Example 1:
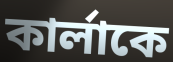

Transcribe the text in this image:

কার্লাকে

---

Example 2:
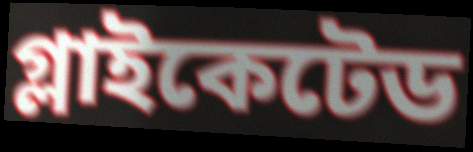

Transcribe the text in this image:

গ্লাইকেটেড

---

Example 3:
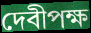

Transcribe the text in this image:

দেবীপক্ষ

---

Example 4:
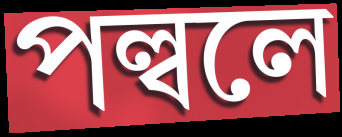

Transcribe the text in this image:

পল্বলে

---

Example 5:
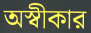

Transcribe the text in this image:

অস্বীকার